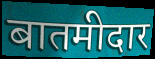
बातमीदार